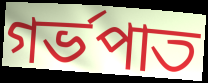
গৰ্ভপাত